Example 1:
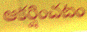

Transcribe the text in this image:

ఆకర్షించటం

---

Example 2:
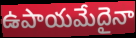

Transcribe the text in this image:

ఉపాయమేదైనా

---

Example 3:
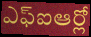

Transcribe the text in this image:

ఎఫ్ఐఆర్లో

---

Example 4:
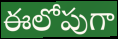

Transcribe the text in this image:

ఈలోపుగా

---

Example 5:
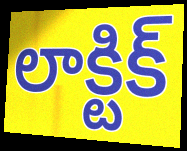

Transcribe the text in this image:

లాక్టిక్